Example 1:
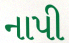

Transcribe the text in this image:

નાપી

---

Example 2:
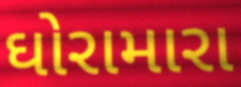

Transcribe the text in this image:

ઘોરામારા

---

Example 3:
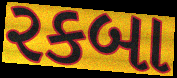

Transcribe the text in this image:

રકબા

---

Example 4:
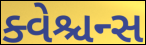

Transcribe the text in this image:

ક્વેશ્ચન્સ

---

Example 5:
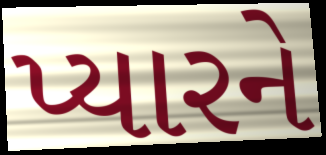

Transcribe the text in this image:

પ્યારને